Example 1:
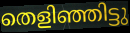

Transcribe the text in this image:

തെളിഞ്ഞിട്ടു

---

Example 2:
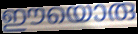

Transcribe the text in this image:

ഈയൊരു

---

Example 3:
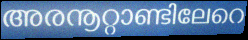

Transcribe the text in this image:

അരനൂറ്റാണ്ടിലേറെ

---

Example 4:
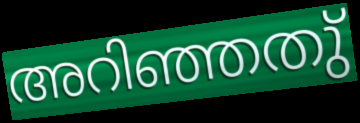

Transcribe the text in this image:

അറിഞ്ഞതു്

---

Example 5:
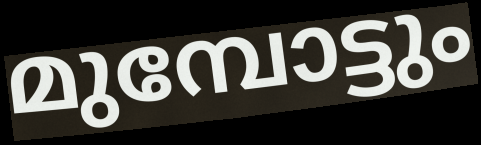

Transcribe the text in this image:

മുമ്പോട്ടും